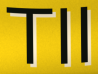
TII